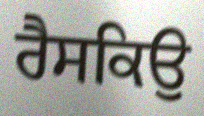
ਰੈਸਕਿਉ